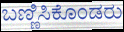
ಬಣ್ಣಿಸಿಕೊಂಡರು